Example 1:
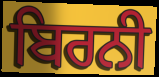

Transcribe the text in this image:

ਬਿਰਨੀ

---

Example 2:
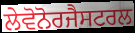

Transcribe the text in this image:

ਲੇਵੋਨੋਰਜੈਸਟਰਲ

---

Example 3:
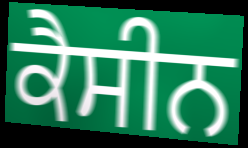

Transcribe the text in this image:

ਕੈਸੀਨ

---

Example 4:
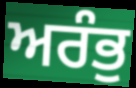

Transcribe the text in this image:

ਅਰੰਭੁ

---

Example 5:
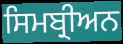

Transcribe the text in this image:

ਸਿਮਬ੍ਰੀਅਨ